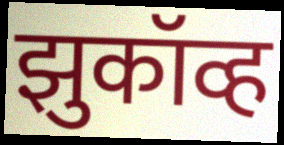
झुकॉव्ह